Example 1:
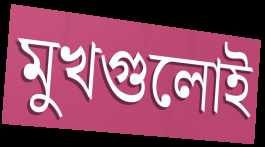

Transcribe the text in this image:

মুখগুলোই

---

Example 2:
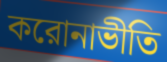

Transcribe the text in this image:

করোনাভীতি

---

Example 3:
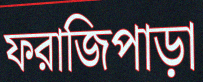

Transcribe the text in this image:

ফরাজিপাড়া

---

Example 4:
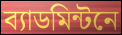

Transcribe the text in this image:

ব্যাডমিন্টনে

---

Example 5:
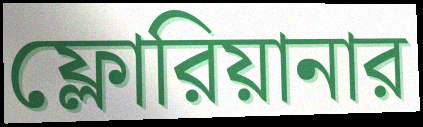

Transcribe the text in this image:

ফ্লোরিয়ানার